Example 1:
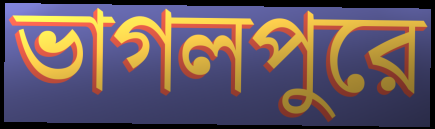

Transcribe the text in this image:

ভাগলপুরে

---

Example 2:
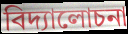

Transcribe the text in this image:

বিদ্যালোচনা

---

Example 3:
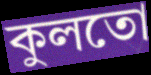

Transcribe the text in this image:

কুলতো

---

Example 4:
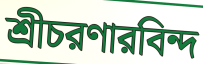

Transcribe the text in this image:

শ্রীচরণারবিন্দ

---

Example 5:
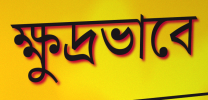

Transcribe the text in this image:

ক্ষুদ্রভাবে